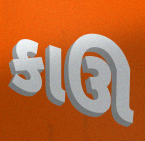
કાઊ